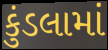
કુંડલામાં